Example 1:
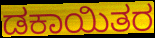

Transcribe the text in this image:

ಡಕಾಯಿತರ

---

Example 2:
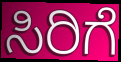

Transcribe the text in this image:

ಸಿರಿಗೆ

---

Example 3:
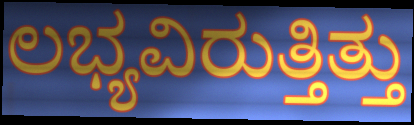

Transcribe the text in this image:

ಲಭ್ಯವಿರುತ್ತಿತ್ತು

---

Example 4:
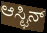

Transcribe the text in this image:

ಆಸ್ಟಿನ್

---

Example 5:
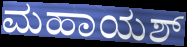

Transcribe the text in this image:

ಮಹಾಯಶ್